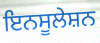
ਇਨਸੂਲੇਸ਼ਨ